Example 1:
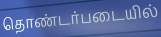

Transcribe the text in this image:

தொண்டர்படையில்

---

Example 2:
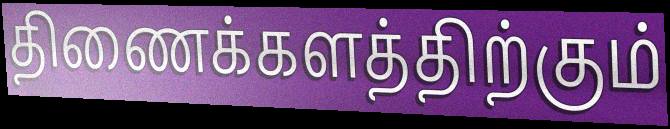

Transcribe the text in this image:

திணைக்களத்திற்கும்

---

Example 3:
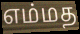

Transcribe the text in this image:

எம்மத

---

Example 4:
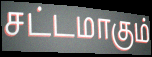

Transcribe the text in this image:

சட்டமாகும்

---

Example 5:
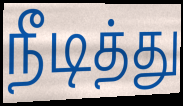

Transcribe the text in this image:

நீடித்து